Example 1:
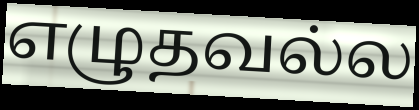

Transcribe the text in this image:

எழுதவல்ல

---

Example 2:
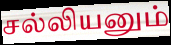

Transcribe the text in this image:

சல்லியனும்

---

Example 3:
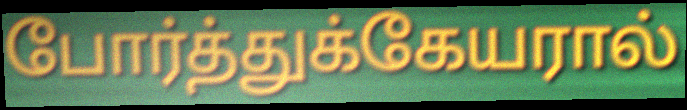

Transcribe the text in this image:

போர்த்துக்கேயரால்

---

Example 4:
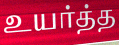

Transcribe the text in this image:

உயர்த்த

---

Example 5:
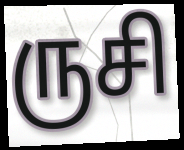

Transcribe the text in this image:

ருசி